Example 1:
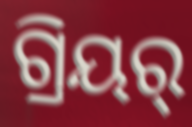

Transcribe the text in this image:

ଗ୍ରିୟର୍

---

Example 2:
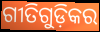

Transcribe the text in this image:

ଗୀତିଗୁଡ଼ିକର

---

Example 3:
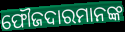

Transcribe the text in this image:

ଫୌଜଦାରମାନଙ୍କ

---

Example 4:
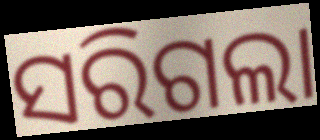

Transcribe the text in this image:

ସରିଗଲା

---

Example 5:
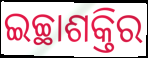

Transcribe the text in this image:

ଇଚ୍ଛାଶକ୍ତିର